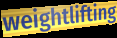
weightlifting